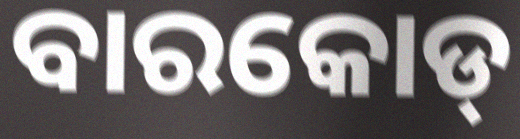
ବାରକୋଡ୍